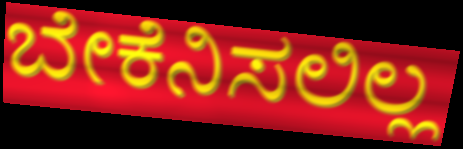
ಬೇಕೆನಿಸಲಿಲ್ಲ